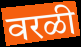
वरळी